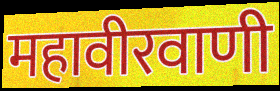
महावीरवाणी